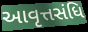
આવૃત્તસંધિ